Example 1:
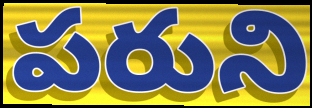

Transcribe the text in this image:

పరుని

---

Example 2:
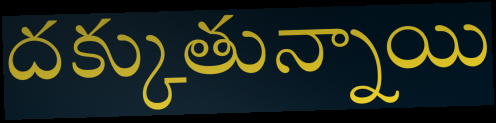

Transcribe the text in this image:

దక్కుతున్నాయి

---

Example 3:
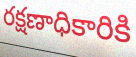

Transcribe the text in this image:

రక్షణాధికారికి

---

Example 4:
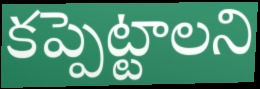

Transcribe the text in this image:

కప్పెట్టాలని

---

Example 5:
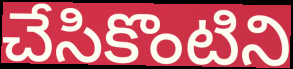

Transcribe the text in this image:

చేసికొంటిని